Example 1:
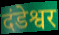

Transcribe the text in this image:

दंडेश्वर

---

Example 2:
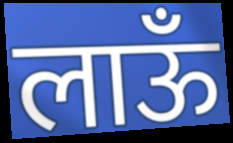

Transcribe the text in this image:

लाऊँ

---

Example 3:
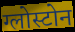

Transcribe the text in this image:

ग्लोस्टोन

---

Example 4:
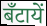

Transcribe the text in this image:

बँटायें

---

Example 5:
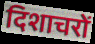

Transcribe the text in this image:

दिशाचरों